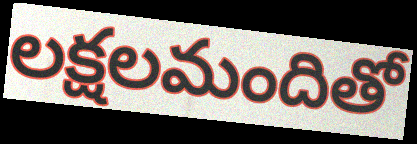
లక్షలమందితో